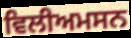
ਵਿਲੀਅਮਸਨ